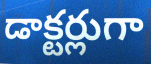
డాక్టర్లుగా